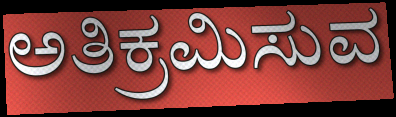
ಅತಿಕ್ರಮಿಸುವ